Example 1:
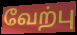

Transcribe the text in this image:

வேற்பு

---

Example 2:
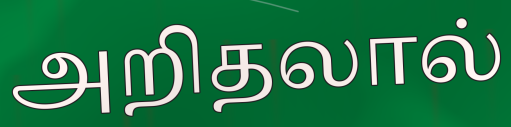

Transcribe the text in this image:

அறிதலால்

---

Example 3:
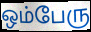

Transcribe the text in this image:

ஒம்பேரு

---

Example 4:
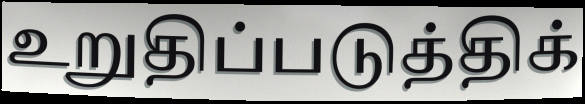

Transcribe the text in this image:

உறுதிப்படுத்திக்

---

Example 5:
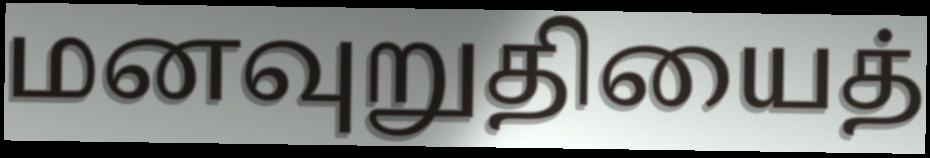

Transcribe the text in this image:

மனவுறுதியைத்